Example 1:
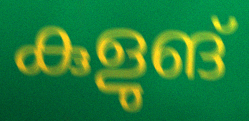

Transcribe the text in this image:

കുളുങ്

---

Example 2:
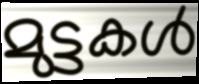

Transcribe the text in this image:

മുട്ടകൾ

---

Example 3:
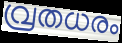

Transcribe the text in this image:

വ്രതധരം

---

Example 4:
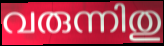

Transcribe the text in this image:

വരുന്നിതു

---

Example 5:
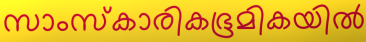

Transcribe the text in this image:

സാംസ്കാരികഭൂമികയിൽ